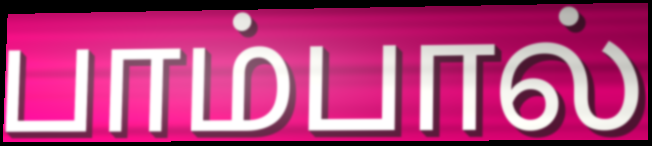
பாம்பால்